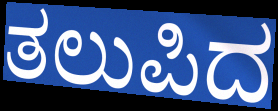
ತಲುಪಿದ